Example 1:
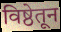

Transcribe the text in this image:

विष्ठेतून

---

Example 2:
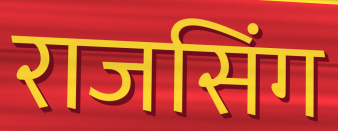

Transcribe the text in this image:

राजसिंग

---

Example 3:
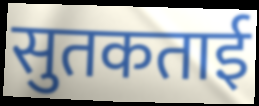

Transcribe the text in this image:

सुतकताई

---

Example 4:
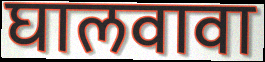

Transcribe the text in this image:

घालवावा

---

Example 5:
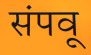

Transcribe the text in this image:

संपवू